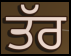
ਤੱਰ